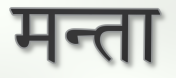
मन्ता